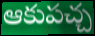
ఆకుపచ్చ